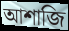
আশাজি